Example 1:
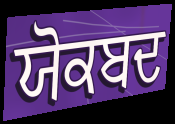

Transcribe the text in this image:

ਯੋਕਬਦ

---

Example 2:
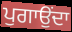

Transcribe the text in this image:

ਪੁਗਾਉਂਦਾ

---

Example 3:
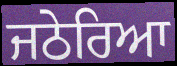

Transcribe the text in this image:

ਜਠੇਰਿਆ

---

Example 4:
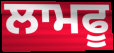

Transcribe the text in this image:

ਲਾਮਫੂ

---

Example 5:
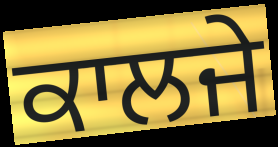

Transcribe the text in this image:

ਕਾਲਜੇ